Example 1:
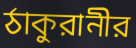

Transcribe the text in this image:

ঠাকুরানীর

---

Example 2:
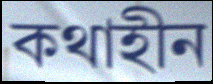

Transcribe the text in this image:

কথাহীন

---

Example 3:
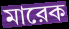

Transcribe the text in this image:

মারেক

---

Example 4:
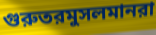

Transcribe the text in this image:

গুরুতরমুসলমানরা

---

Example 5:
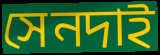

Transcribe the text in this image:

সেনদাই